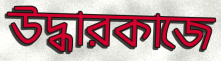
উদ্ধারকাজে